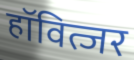
हॉवित्जर